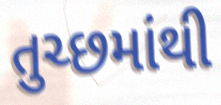
તુચ્છમાંથી